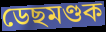
ডেছমণ্ডক